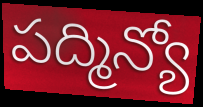
పద్మిన్యో